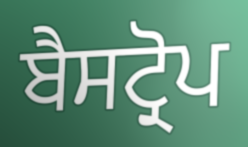
ਬੈਸਟ੍ਰੋਪ